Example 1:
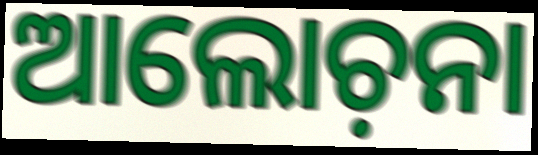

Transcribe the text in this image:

ଆଲୋଚ଼ନା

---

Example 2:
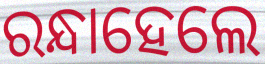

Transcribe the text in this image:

ରନ୍ଧାହେଲେ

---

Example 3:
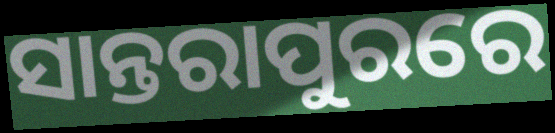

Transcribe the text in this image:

ସାନ୍ତରାପୁରରେ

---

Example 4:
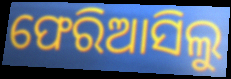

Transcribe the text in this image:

ଫେରିଆସିଲୁ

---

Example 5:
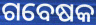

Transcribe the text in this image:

ଗବେଷକ